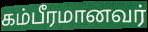
கம்பீரமானவர்